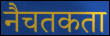
नैचतकता